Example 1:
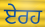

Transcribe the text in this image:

ਏਰਹ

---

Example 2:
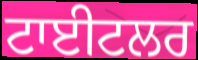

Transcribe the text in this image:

ਟਾਈਟਲਰ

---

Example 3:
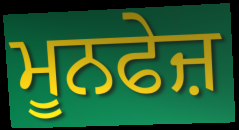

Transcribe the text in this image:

ਮੂਨਫੇਜ਼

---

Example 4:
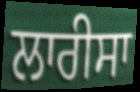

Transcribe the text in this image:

ਲਾਰੀਸਾ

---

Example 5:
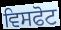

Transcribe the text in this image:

ਵਿਸਫੋਟ